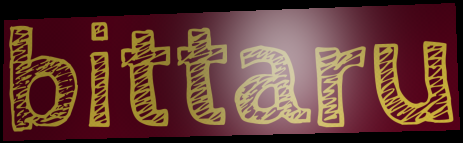
bittaru